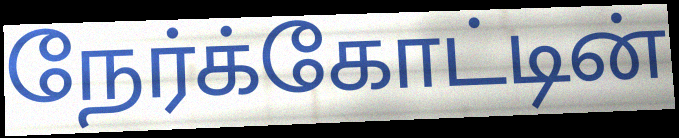
நேர்க்கோட்டின்